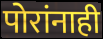
पोरांनाही